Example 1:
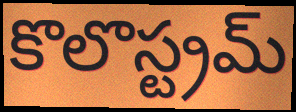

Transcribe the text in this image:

కొలొస్ట్రమ్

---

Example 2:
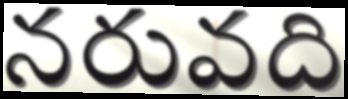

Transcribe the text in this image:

నరువది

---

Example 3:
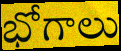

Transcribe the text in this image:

భోగాలు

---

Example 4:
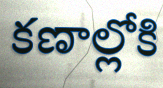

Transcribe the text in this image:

కణాల్లోకి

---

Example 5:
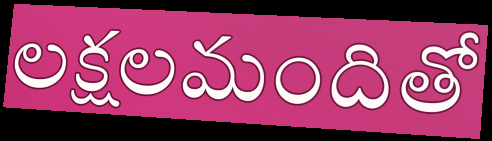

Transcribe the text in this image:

లక్షలమందితో